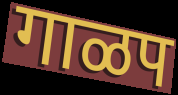
गाळप